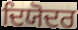
ਦਿਯੋਦਰ